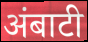
अंबाटी